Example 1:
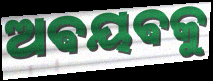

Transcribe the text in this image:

ଅଵୟଵକୁ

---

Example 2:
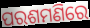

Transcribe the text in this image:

ପରଶମଣିରେ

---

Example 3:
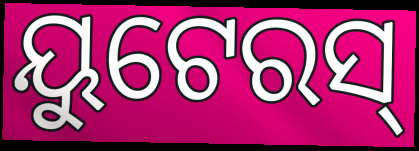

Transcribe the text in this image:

ୟୁଟେରସ୍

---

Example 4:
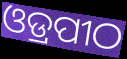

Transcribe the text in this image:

ଓଡ୍ରପୀଠ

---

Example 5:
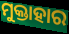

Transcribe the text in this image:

ମୁକ୍ତାହାର